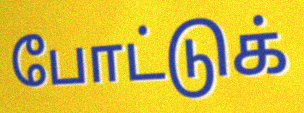
போட்டுக்